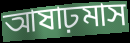
আষাঢ়মাস